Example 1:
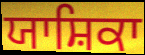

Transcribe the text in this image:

ਯਾਸ਼ਿਕਾ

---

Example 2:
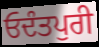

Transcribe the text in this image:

ਓਦੰਤਪੁਰੀ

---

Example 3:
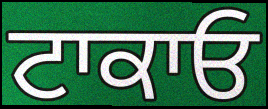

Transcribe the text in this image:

ਟਾਕਾਓ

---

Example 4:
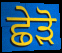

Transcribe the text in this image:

ਛੇੜੋ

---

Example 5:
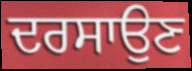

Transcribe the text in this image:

ਦਰਸਾਉਣ